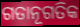
ଗତାନୂଗତିକ